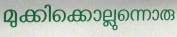
മുക്കിക്കൊല്ലുന്നൊരു